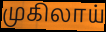
முகிலாய்